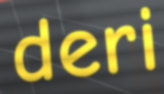
deri